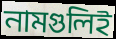
নামগুলিই